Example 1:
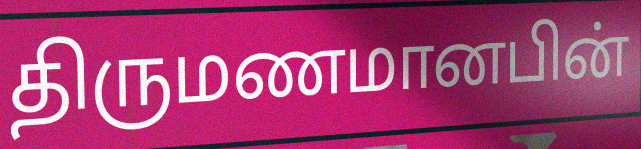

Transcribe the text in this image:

திருமணமானபின்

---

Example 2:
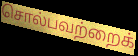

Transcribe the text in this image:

சொல்பவற்றைக்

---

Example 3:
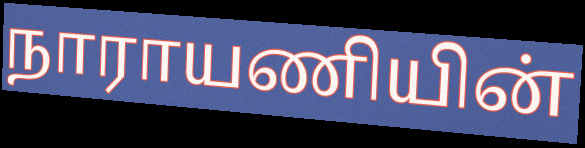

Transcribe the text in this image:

நாராயணியின்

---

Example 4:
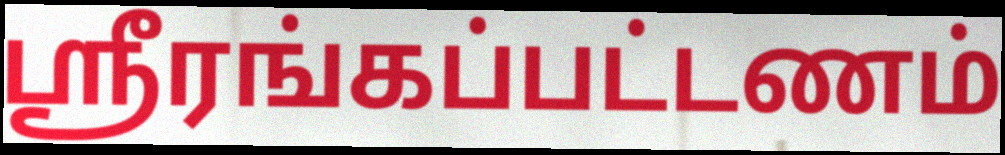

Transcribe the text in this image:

ஸ்ரீரங்கப்பட்டணம்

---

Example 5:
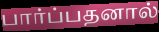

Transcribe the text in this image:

பார்ப்பதனால்